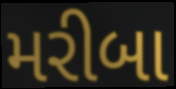
મરીબા